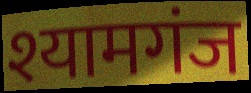
श्यामगंज